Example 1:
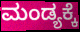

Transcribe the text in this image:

ಮಂಡ್ಯಕ್ಕೆ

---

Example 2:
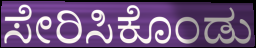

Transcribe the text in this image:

ಸೇರಿಸಿಕೊಂಡು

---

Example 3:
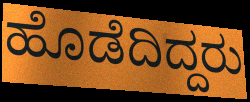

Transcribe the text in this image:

ಹೊಡೆದಿದ್ದರು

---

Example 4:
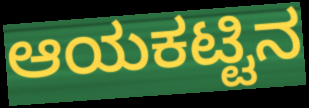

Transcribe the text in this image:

ಆಯಕಟ್ಟಿನ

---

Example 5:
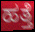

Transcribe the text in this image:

ಹತ್ತೆ